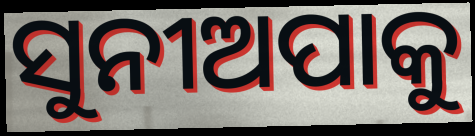
ସୁନୀଅପାକୁ